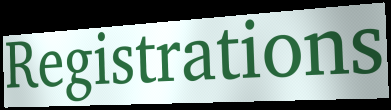
Registrations